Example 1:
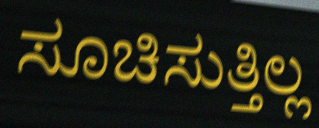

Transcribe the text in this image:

ಸೂಚಿಸುತ್ತಿಲ್ಲ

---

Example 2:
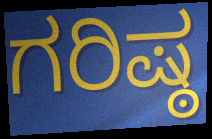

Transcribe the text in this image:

ಗರಿಷ್ಠ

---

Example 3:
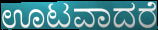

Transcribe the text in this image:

ಊಟವಾದರೆ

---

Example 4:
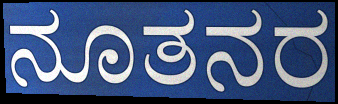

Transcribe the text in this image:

ನೂತನರ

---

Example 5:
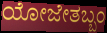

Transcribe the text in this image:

ಯೋಜೇತಬ್ಬಂ